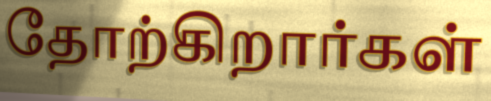
தோற்கிறார்கள்